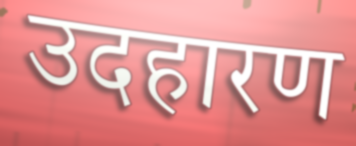
उदहारण